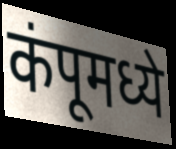
कंपूमध्ये